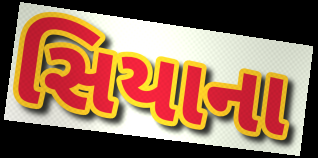
સિયાના